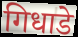
गिधाडे